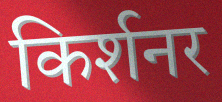
किर्शनर